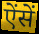
ऐंसें